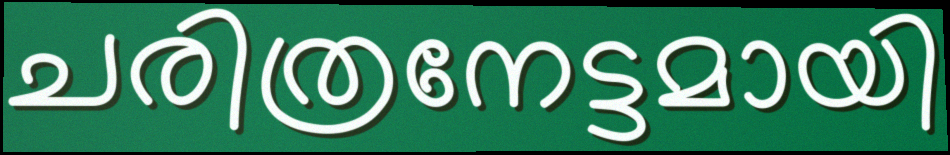
ചരിത്രനേട്ടമായി